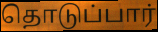
தொடுப்பார்